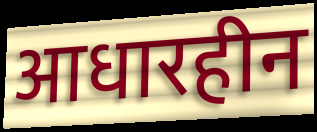
आधारहीन